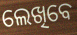
ଲେଖିବେ